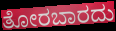
ತೋರಬಾರದು